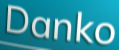
Danko